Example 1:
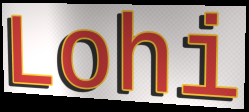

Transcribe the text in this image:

Lohi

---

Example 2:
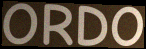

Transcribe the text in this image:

ORDO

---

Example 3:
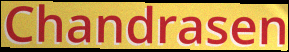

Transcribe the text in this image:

Chandrasen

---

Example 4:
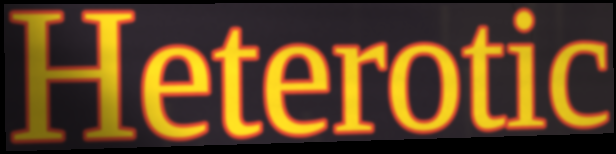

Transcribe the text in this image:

Heterotic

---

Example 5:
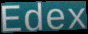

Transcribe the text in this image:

Edex